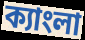
ক্যাংলা